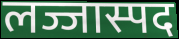
लज्जास्पद